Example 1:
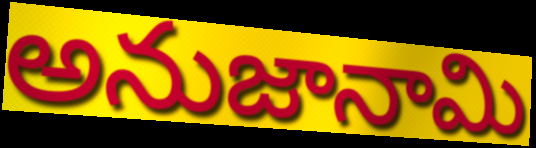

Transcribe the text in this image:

అనుజానామి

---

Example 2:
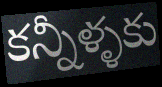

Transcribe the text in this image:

కన్నీళ్ళకు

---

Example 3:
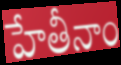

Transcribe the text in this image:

హేతీనాం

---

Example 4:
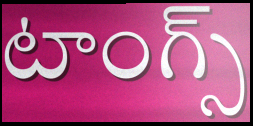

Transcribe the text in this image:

టాంగ్స్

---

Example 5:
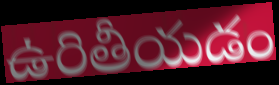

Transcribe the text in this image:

ఉరితీయడం